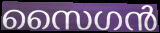
സൈഗൻ